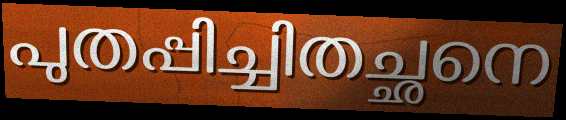
പുതപ്പിച്ചിതച്ഛനെ